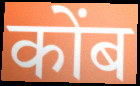
कोंब